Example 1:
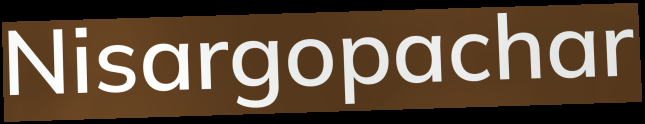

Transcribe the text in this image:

Nisargopachar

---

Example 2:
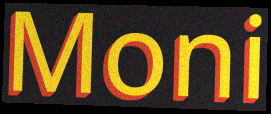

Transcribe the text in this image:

Moni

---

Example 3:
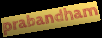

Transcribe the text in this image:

prabandham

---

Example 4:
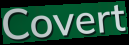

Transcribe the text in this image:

Covert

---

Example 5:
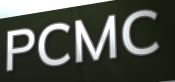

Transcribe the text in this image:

PCMC